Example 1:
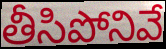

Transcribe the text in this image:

తీసిపోనివే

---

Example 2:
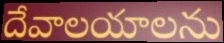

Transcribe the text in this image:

దేవాలయాలను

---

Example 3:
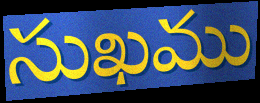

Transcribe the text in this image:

సుఖము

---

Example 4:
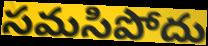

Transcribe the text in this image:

సమసిపోదు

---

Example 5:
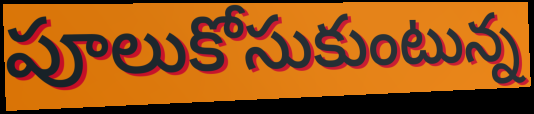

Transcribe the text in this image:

పూలుకోసుకుంటున్న